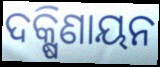
ଦକ୍ଷିଣାୟନ